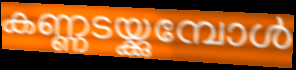
കണ്ണടയ്ക്കുമ്പോൾ